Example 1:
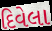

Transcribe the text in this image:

દિવેલા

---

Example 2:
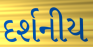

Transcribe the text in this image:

દર્શનીય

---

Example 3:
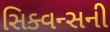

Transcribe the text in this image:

સિક્વન્સની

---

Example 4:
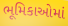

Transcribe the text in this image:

ભૂમિકાઓમાં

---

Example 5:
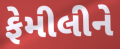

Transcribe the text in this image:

ફેમીલીને